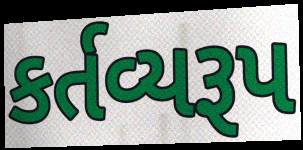
કર્તવ્યરૂપ